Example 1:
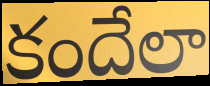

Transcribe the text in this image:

కందేలా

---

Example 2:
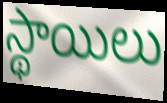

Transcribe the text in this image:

స్థాయిలు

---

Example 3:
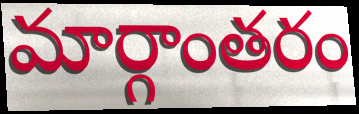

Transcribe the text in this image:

మార్గాంతరం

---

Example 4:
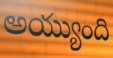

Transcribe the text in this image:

అయ్యుంది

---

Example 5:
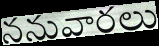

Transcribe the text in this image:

ననువారలు